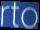
rto